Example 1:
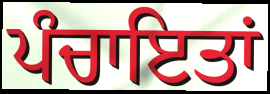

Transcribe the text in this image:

ਪੰਚਾਇਤਾਂ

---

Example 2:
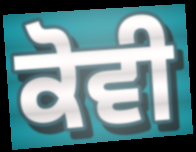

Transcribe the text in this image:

ਕੋਵੀ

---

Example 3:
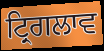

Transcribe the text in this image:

ਟ੍ਰਿਗਲਾਵ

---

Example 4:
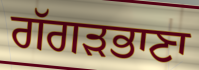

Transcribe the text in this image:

ਗੱਗੜਭਾਣਾ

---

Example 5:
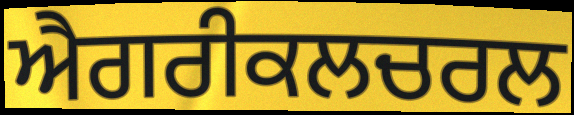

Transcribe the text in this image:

ਐਗਰੀਕਲਚਰਲ